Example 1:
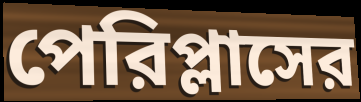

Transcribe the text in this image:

পেরিপ্লাসের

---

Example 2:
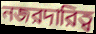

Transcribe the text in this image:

নজরদারিত্ব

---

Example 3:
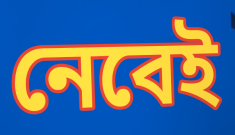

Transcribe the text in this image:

নেবেই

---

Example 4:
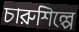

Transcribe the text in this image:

চারুশিল্পে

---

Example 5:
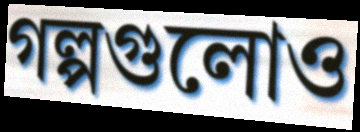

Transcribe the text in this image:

গল্পগুলোও